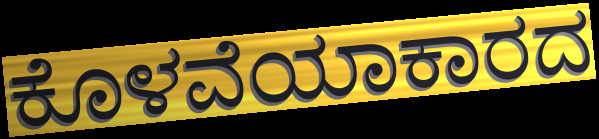
ಕೊಳವೆಯಾಕಾರದ